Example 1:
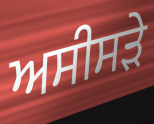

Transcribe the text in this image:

ਅਸੀਸੜੇ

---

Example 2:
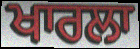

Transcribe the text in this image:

ਖਾਰਲਾ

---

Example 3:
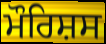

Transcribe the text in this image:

ਮੌਰਿਸ਼ਸ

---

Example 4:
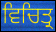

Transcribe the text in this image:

ਵਿਚਿਤ੍ਰ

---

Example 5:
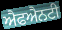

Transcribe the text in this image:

ਐਫਐਨਟੀ